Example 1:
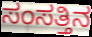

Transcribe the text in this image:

ಸಂಸತ್ತಿನ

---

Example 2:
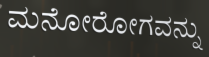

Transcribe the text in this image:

ಮನೋರೋಗವನ್ನು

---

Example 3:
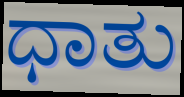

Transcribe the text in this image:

ಧಾತು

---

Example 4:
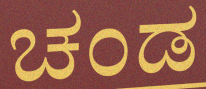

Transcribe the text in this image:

ಚಂಡ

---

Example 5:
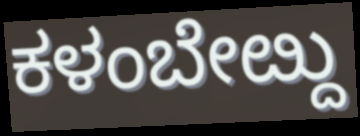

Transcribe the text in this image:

ಕಳಂಬೇೞ್ದು